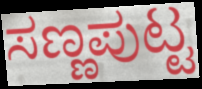
ಸಣ್ಣಪುಟ್ಟ